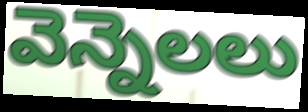
వెన్నెలలు